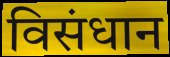
विसंधान